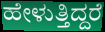
ಹೇಳುತ್ತಿದ್ದರೆ